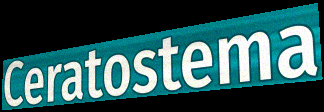
Ceratostema